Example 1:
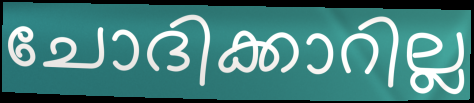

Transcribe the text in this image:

ചോദിക്കാറില്ല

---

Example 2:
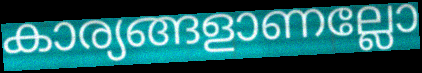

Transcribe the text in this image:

കാര്യങ്ങളാണല്ലോ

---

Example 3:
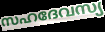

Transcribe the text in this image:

സഹദേവസ്യ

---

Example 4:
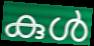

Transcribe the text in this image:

കുൾ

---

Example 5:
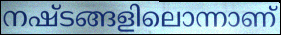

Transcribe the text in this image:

നഷ്ടങ്ങളിലൊന്നാണ്